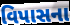
વિપાસના